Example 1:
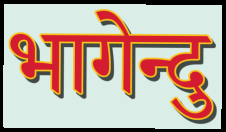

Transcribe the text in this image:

भागेन्दु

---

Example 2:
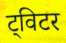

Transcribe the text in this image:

ट्विटर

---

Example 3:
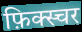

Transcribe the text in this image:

फ़िक्स्चर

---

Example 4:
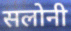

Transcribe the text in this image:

सलोनी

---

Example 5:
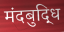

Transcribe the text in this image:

मंदबुद्धि